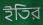
ইতির